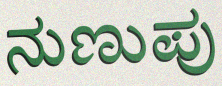
ನುಣುಪು